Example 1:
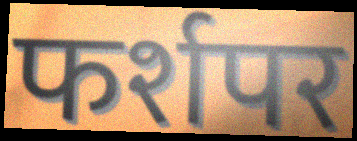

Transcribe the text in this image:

फर्शपर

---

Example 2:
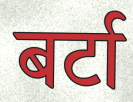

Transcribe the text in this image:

बर्टा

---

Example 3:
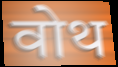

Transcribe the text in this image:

वोथ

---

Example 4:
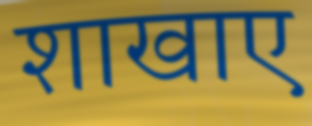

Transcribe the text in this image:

शाखाए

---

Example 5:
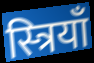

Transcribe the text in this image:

स्‍त्रियाँ